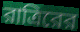
রাত্রিরের